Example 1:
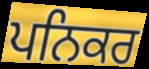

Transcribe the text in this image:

ਪਨਿਕਰ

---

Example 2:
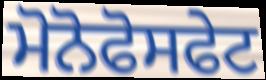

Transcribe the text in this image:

ਮੋਨੋਫੋਸਫੇਟ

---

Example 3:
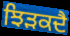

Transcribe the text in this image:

ਝਿੜਕਦੈ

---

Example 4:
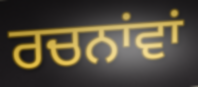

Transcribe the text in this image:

ਰਚਨਾਂਵਾਂ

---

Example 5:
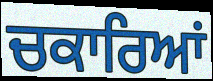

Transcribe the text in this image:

ਚਕਾਰਿਆਂ